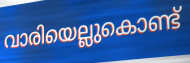
വാരിയെല്ലുകൊണ്ട്